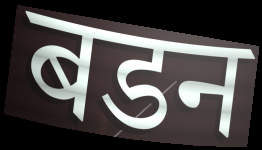
बडन